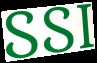
SSI